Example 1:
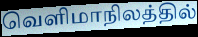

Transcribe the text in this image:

வெளிமாநிலத்தில்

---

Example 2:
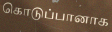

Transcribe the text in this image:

கொடுப்பானாக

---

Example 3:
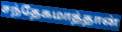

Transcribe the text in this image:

சந்தேகமாத்தான்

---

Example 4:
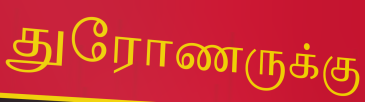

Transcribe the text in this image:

துரோணருக்கு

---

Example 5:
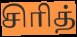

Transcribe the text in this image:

சிரித்